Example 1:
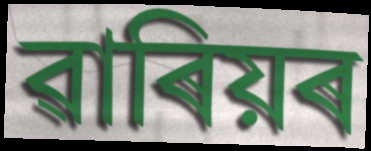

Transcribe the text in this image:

ৱাৰিয়ৰ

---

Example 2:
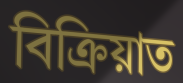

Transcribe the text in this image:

বিক্ৰিয়াত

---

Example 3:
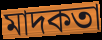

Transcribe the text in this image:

মাদকতা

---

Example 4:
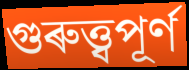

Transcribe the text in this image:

গুৰুত্ত্বপূৰ্ণ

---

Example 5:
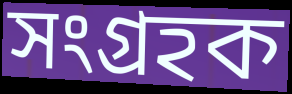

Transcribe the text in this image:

সংগ্ৰহক